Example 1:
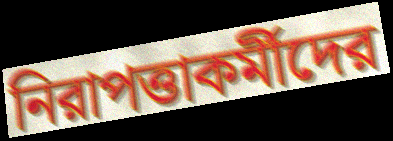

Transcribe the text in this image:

নিরাপত্তাকর্মীদের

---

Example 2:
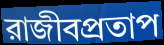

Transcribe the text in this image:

রাজীবপ্রতাপ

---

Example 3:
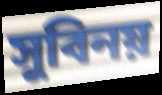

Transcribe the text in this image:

সুবিনয়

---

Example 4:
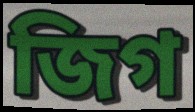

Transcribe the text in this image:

জিগ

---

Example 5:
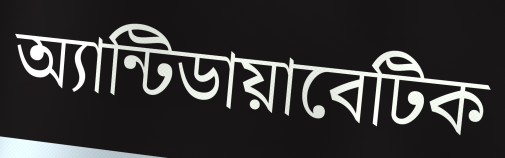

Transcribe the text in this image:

অ্যান্টিডায়াবেটিক